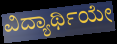
ವಿದ್ಯಾರ್ಥಿಯೇ